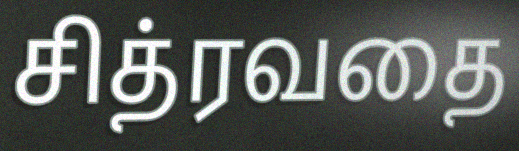
சித்ரவதை